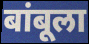
बांबूला